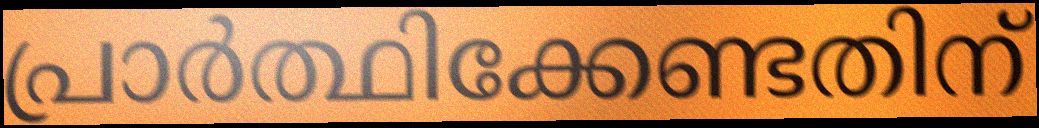
പ്രാർത്ഥിക്കേണ്ടതിന്